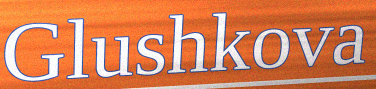
Glushkova